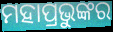
ମହାପ୍ରଭୁଙ୍କର